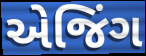
એજિંગ